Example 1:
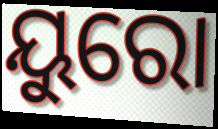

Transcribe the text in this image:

ୟୁରୋ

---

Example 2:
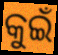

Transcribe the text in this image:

କୁଇଁ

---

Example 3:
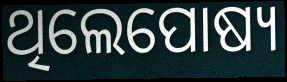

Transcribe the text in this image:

ଥିଲେପୋଷ୍ୟ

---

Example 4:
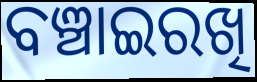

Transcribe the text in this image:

ବଞ୍ଚାଇରଖି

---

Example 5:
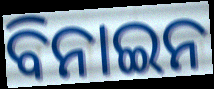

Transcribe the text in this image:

ବିନାଇନ